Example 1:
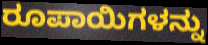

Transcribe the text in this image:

ರೂಪಾಯಿಗಳನ್ನು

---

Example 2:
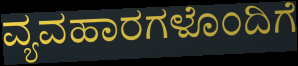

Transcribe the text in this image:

ವ್ಯವಹಾರಗಳೊಂದಿಗೆ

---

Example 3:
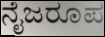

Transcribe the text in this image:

ನೈಜರೂಪ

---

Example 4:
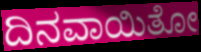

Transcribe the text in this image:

ದಿನವಾಯಿತೋ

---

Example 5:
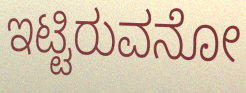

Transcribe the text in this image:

ಇಟ್ಟಿರುವನೋ